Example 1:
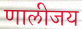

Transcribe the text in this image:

णालीजय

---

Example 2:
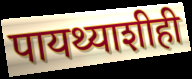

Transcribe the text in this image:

पायथ्याशीही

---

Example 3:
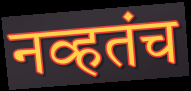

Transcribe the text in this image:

नव्हतंच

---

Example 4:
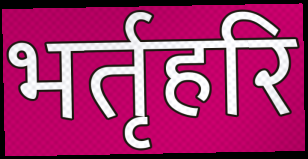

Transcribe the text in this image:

भर्तृहरि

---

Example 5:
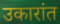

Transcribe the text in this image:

उकारांत